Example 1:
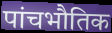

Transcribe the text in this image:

पांचभौतिक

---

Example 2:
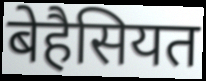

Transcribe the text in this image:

बेहैसियत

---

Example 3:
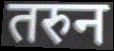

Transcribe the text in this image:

तरुन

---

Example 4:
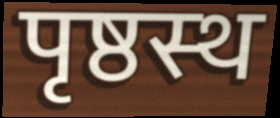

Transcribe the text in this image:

पृष्ठस्थ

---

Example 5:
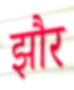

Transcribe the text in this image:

झौर